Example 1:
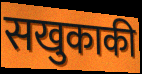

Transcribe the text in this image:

सखुकाकी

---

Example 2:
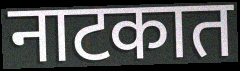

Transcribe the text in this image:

नाटकात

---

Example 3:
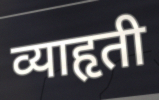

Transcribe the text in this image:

व्याहृती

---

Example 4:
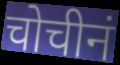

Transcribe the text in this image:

चोचीनं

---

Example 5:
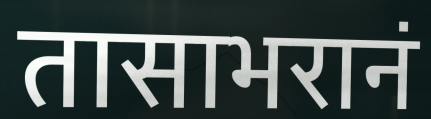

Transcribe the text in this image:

तासाभरानं